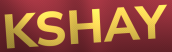
KSHAY